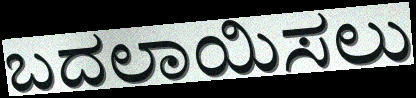
ಬದಲಾಯಿಸಲು